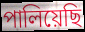
পালিয়েছি